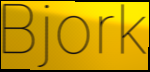
Bjork